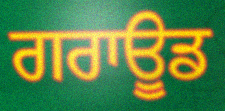
ਗਰਾਊਡ